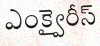
ఎంక్వైరీస్